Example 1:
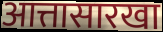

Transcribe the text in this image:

आत्तासारखा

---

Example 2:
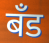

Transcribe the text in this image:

बॅंड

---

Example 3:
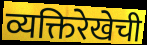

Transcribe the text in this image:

व्यक्तिरेखेची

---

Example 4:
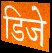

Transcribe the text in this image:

डिजे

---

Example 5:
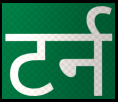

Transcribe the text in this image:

टर्न